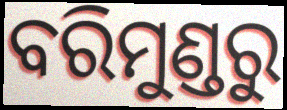
ବରିମୁଣ୍ଡରୁ